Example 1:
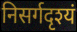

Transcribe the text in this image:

निसर्गदृश्यं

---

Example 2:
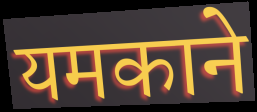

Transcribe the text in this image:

यमकाने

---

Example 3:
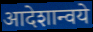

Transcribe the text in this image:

आदेशान्वये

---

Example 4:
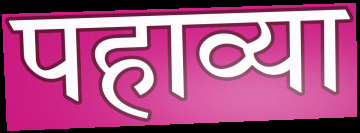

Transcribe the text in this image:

पहाव्या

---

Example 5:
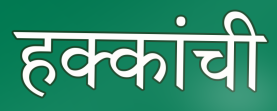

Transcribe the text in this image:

हक्कांची